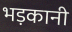
भड़कानी